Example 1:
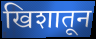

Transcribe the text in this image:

खिशातून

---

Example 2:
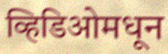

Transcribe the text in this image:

व्हिडिओमधून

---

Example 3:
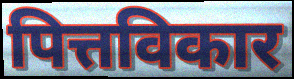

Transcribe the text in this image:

पित्तविकार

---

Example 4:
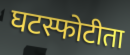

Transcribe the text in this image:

घटस्फोटीता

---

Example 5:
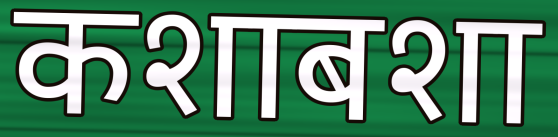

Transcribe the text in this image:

कशाबशा